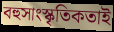
বহুসাংস্কৃতিকতাই